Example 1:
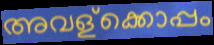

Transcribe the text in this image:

അവള്ക്കൊപ്പം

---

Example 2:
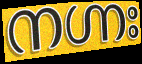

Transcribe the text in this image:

നഗ്നഃ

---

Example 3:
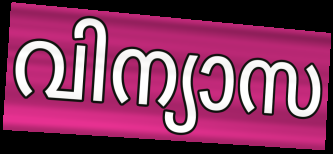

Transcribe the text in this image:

വിന്യാസ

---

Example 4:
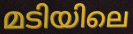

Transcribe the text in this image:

മടിയിലെ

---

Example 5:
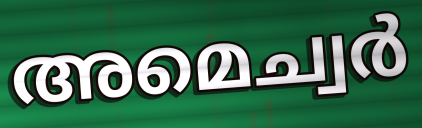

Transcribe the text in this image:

അമെച്വർ